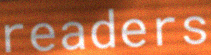
readers